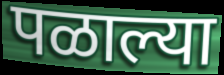
पळाल्या